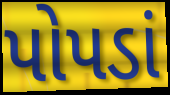
પોપડાં